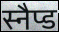
स्नैप्ड